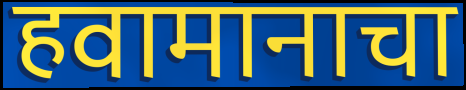
हवामानाचा